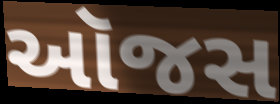
ઑજસ